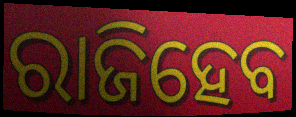
ରାଜିହେବ